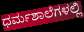
ಧರ್ಮಶಾಲೆಗಳಲ್ಲಿ